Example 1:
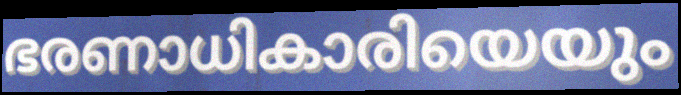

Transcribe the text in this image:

ഭരണാധികാരിയെയും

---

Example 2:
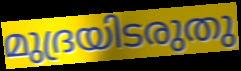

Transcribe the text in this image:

മുദ്രയിടരുതു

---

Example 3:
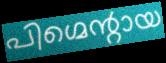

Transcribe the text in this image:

പിഗ്മെന്റായ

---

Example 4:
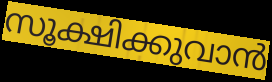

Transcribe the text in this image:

സൂക്ഷിക്കുവാൻ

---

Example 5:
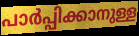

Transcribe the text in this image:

പാർപ്പിക്കാനുള്ള